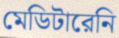
মেডিটারেনি